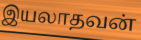
இயலாதவன்